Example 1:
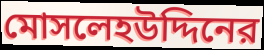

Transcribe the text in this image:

মোসলেহউদ্দিনের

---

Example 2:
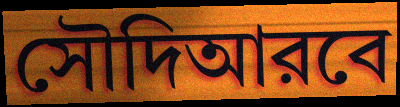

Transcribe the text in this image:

সৌদিআরবে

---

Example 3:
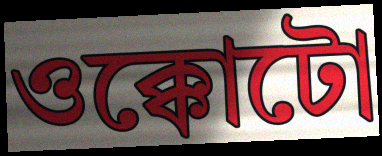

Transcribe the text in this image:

ওক্কোটো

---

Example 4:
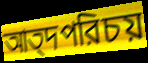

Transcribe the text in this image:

আত্দপরিচয়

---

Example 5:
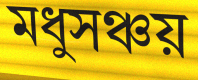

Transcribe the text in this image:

মধুসঞ্চয়